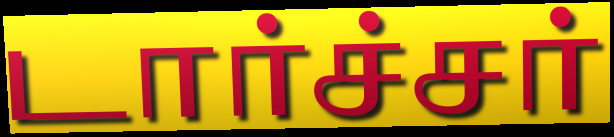
டார்ச்சர்